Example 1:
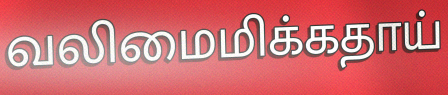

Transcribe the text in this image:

வலிமைமிக்கதாய்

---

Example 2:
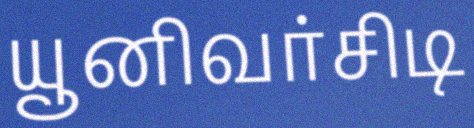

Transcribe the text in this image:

யூனிவர்சிடி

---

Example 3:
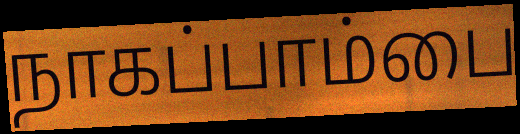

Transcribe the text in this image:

நாகப்பாம்பை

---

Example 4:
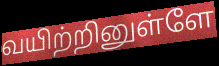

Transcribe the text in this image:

வயிற்றினுள்ளே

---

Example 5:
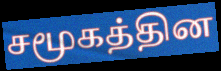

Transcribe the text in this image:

சமூகத்தின